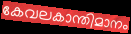
കേവലകാന്തിമാനം